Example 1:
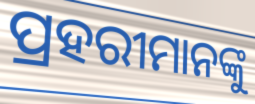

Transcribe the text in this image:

ପ୍ରହରୀମାନଙ୍କୁ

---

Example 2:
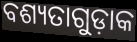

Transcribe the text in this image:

ବଶ୍ୟତାଗୁଡ଼ାକ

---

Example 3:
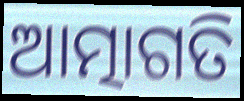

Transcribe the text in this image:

ଆତ୍ମାଗତି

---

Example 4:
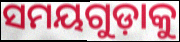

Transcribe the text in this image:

ସମୟଗୁଡ଼ାକୁ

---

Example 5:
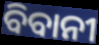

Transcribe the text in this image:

ବିବାନୀ